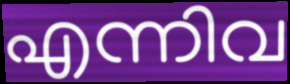
എന്നിവ